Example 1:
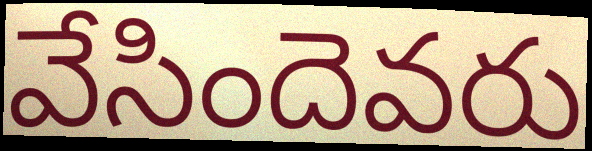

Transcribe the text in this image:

వేసిందెవరు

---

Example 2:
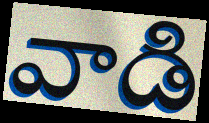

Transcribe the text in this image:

వాడి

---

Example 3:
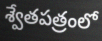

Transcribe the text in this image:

శ్వేతపత్రంలో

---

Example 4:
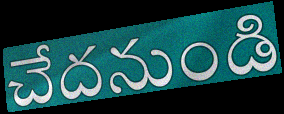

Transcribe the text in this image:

చేదనుండి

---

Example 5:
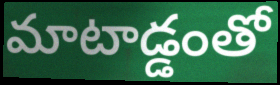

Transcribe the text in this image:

మాటాడ్డంతో